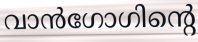
വാൻഗോഗിന്റെ